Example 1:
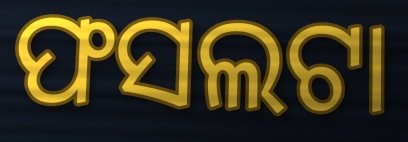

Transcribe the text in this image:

ଫସଲଟା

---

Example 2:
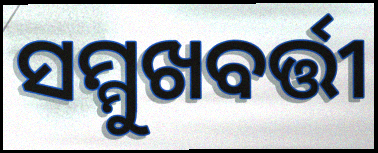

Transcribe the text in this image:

ସମ୍ମୁଖବର୍ତ୍ତୀ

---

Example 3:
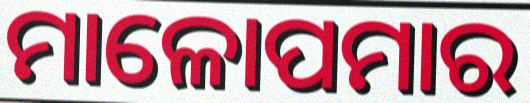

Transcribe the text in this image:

ମାଳୋପମାର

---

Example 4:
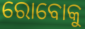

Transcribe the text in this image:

ରୋବୋକୁ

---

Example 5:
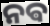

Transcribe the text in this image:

ନଵ